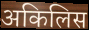
अकिलिस